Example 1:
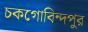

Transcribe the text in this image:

চকগোবিন্দপুর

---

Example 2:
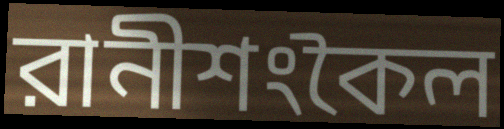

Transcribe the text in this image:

রানীশংকৈল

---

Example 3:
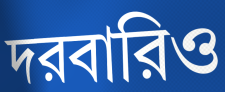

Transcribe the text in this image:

দরবারিও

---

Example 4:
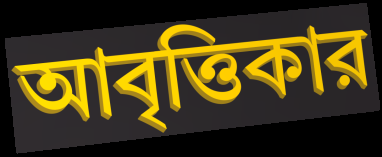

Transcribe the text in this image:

আবৃত্তিকার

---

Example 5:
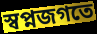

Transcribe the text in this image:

স্বপ্নজগতে